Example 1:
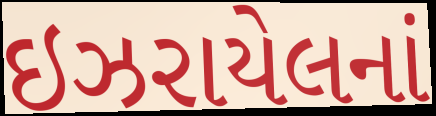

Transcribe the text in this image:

ઇઝરાયેલનાં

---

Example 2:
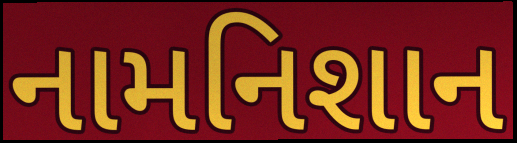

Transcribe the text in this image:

નામનિશાન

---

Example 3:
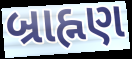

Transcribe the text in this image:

બ્રાહ્નણ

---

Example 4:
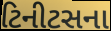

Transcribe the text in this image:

ટિનીટસના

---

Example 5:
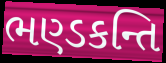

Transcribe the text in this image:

ભણ્ડકન્તિ